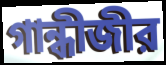
গান্ধীজীর